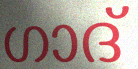
ഗാദ്